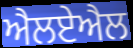
ਐਲਏਐਲ